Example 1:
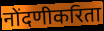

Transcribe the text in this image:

नोंदणीकरिता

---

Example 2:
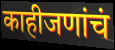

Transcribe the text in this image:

काहीजणांचं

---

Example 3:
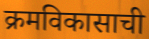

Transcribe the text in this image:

क्रमविकासाची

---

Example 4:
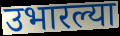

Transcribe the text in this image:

उभारल्या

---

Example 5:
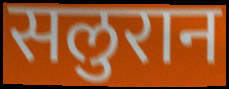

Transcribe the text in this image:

सलुरान